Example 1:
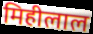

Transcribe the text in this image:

मिहीलाल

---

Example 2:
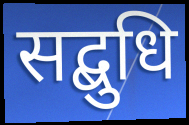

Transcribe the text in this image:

सद्बुधि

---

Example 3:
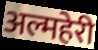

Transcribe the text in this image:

अल्महेरी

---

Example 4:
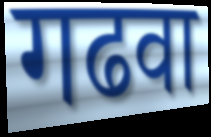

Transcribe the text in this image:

गढवा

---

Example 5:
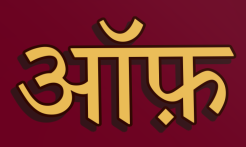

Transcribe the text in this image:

ऑफ़